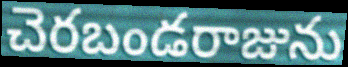
చెరబండరాజును